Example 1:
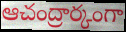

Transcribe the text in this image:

ఆచంద్రార్కంగా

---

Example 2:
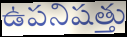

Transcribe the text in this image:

ఉపనిషత్తు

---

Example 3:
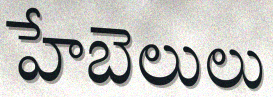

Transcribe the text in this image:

హేబెలులు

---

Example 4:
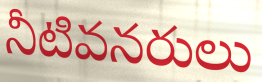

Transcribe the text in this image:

నీటివనరులు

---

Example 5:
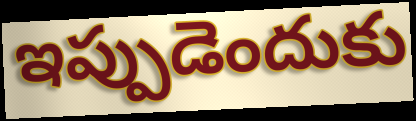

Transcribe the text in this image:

ఇప్పుడెందుకు